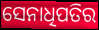
ସେନାଧିପତିର